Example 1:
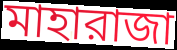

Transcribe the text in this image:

মাহারাজা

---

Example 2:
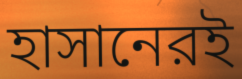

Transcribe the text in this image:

হাসানেরই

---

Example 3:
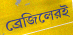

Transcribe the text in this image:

ব্রেজিলেরই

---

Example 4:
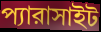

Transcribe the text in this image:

প্যারাসাইট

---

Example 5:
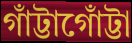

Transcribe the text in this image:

গাঁট্টাগোঁট্টা